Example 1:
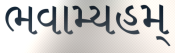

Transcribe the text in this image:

ભવામ્યહમ્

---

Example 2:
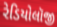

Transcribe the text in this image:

રેડિયોલૉજી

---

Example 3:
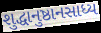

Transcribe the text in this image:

શુદ્ધાનુષ્ઠાનસાધ્ય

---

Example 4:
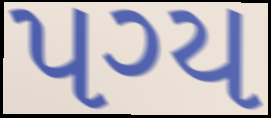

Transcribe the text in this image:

પગ્ય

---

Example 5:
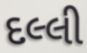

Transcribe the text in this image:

દલ્લી